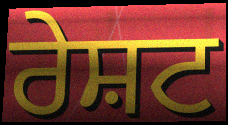
ਰੇਸ਼ਟ